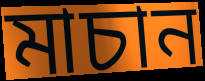
মাচান